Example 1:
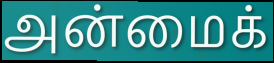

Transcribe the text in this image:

அன்மைக்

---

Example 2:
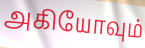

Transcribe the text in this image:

அகியோவும்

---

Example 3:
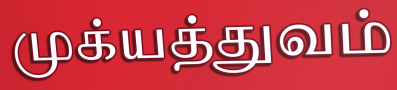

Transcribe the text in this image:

முக்யத்துவம்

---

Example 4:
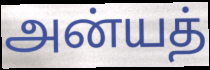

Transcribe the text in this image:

அன்யத்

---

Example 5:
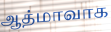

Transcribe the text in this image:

ஆத்மாவாக